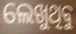
ଲେଖୁଥିବୁ